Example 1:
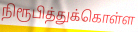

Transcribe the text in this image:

நிரூபித்துக்கொள்ள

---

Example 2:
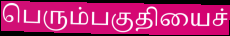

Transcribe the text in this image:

பெரும்பகுதியைச்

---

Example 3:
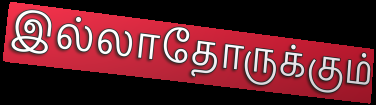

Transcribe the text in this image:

இல்லாதோருக்கும்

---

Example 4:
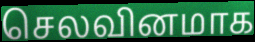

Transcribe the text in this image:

செலவினமாக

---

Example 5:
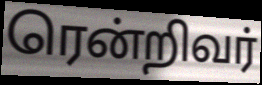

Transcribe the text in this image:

ரென்றிவர்